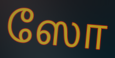
ஸோ